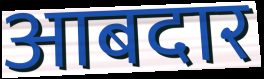
आबदार